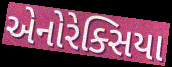
એનોરેક્સિયા